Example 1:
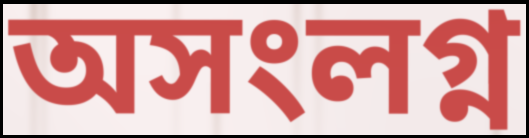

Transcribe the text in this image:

অসংলগ্ন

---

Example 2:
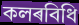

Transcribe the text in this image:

কলৰবিধি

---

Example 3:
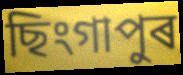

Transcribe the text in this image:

ছিংগাপুৰ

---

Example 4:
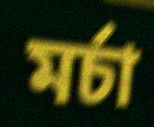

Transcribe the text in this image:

মৰ্চা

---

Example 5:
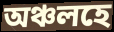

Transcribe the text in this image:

অঞ্চলহে